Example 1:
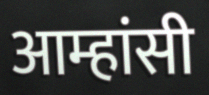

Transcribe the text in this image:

आम्हांसी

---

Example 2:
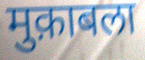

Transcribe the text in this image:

मुक़ाबला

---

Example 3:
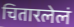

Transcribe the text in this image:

चितारलेलं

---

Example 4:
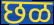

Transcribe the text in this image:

छळ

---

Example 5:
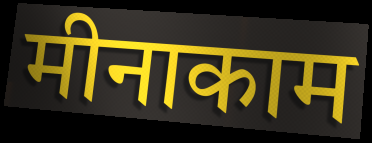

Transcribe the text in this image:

मीनाकाम